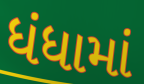
ધંધામાં